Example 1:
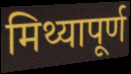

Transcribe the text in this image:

मिथ्यापूर्ण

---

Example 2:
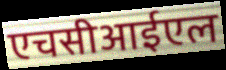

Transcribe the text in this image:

एचसीआईएल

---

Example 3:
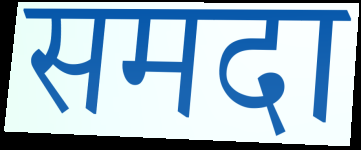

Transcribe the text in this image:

समदा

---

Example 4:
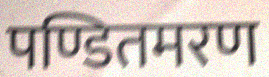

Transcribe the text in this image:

पण्डितमरण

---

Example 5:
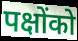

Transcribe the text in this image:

पक्षोंको